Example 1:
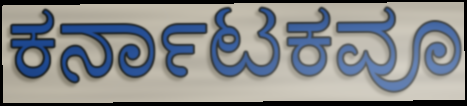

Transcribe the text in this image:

ಕರ್ನಾಟಕವೂ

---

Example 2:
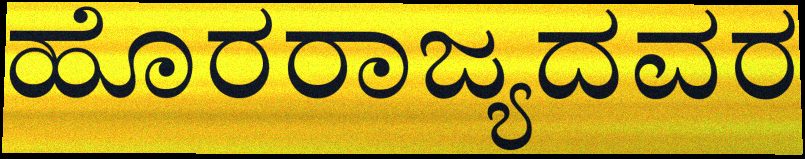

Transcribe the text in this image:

ಹೊರರಾಜ್ಯದವರ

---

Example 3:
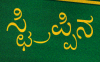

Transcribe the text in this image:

ಸ್ಟ್ರಿಪ್ಪಿನ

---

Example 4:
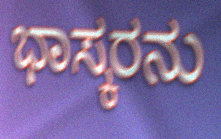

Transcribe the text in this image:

ಭಾಸ್ಕರನು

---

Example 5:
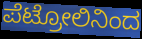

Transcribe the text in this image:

ಪೆಟ್ರೋಲಿನಿಂದ